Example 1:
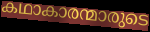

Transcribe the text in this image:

കഥാകാരന്മാരുടെ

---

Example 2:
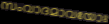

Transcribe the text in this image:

സംവാദമാവയോഃ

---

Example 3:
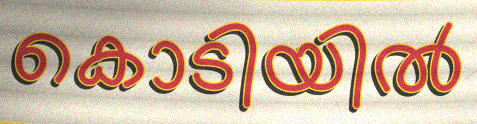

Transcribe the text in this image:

കൊടിയിൽ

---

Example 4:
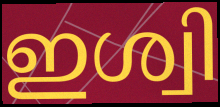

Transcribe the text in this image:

ഇശ്വി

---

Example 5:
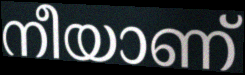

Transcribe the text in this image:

നീയാണ്